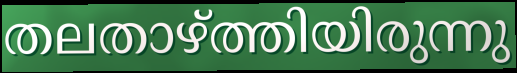
തലതാഴ്ത്തിയിരുന്നു